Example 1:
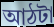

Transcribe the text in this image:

আঠটা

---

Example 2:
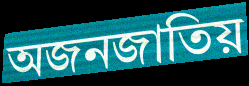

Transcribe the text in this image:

অজনজাতিয়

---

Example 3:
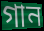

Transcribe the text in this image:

গান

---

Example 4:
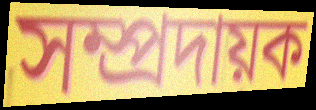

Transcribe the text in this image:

সম্প্ৰদায়ক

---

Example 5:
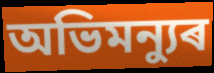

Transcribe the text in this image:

অভিমন্যুৰ